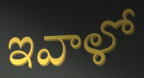
ఇవాళో